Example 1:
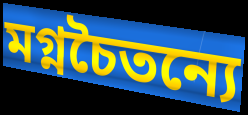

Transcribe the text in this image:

মগ্নচৈতন্যে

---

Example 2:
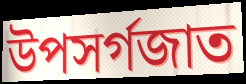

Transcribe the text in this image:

উপসর্গজাত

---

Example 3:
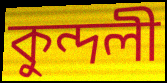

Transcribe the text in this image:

কুন্দলী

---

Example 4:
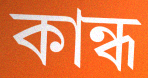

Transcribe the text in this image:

কান্ধ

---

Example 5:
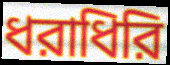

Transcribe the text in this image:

ধরাধিরি